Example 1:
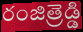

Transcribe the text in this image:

రంజిత్రెడ్డి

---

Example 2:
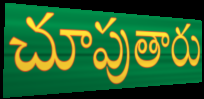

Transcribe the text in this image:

చూపుతారు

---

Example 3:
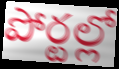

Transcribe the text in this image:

పోర్టల్లో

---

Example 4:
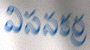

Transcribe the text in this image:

విసనకర్ర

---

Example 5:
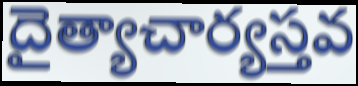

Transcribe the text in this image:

దైత్యాచార్యస్తవ